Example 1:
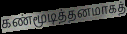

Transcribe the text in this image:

கண்மூடித்தனமாகத்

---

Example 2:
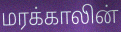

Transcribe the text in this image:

மரக்காலின்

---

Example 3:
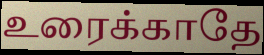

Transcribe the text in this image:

உரைக்காதே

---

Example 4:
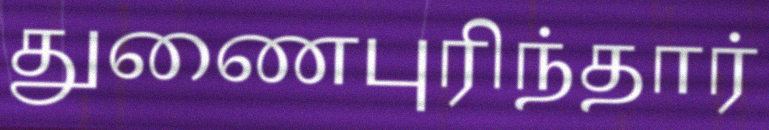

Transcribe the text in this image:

துணைபுரிந்தார்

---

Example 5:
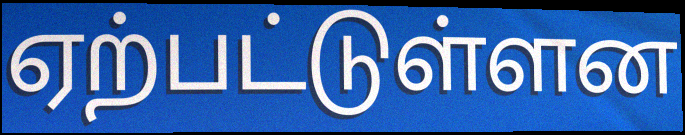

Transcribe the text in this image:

ஏற்பட்டுள்ளன